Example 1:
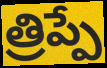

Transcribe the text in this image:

త్రిప్పే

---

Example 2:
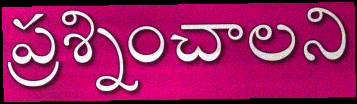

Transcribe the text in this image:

ప్రశ్నించాలని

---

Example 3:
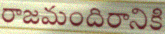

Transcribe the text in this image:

రాజమందిరానికి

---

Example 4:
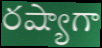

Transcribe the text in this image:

రష్యాగా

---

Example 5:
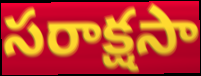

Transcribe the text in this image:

సరాక్షసా